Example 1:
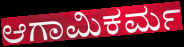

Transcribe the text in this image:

ಆಗಾಮಿಕರ್ಮ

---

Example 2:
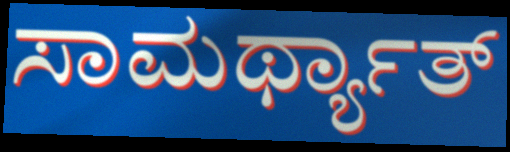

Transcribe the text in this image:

ಸಾಮರ್ಥ್ಯಾತ್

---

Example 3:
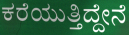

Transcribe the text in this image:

ಕರೆಯುತ್ತಿದ್ದೇನೆ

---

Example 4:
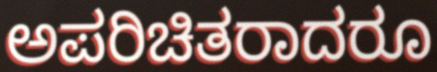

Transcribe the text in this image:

ಅಪರಿಚಿತರಾದರೂ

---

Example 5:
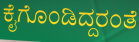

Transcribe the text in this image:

ಕೈಗೊಂಡಿದ್ದರಂತೆ